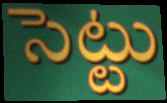
సెట్టు